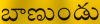
బాణుండు